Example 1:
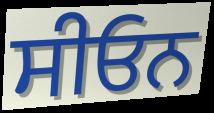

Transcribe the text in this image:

ਸੀਓਨ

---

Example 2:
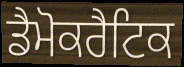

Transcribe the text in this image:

ਡੈਮੋਕਰੈਟਿਕ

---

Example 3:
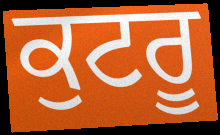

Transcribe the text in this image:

ਕੁਟਰੂ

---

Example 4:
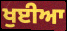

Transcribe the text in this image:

ਖੁਈਆ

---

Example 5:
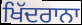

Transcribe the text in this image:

ਖਿੱਦਰਾਨਾ